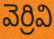
వెర్రివి